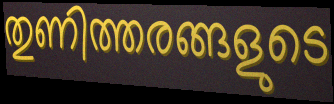
തുണിത്തരങ്ങളുടെ